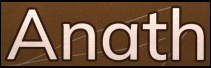
Anath